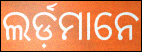
ଲର୍ଡ଼ମାନେ